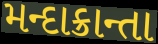
મન્દાક્રાન્તા